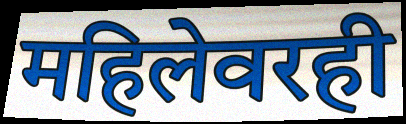
महिलेवरही